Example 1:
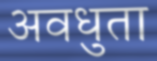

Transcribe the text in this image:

अवधुता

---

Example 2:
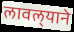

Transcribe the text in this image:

लावल्याने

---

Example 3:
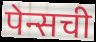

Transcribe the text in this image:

पेन्सची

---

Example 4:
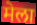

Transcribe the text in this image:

मेला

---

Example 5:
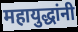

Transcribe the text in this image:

महायुद्धांनी